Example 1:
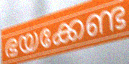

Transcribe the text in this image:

ഭയക്കേണ്ട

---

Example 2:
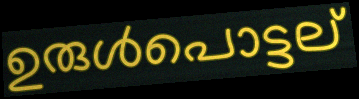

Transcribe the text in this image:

ഉരുൾപൊട്ടല്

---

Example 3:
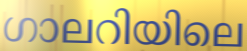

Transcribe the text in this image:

ഗാലറിയിലെ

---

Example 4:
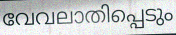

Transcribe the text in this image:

വേവലാതിപ്പെടും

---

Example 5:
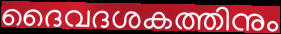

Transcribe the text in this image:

ദൈവദശകത്തിനും